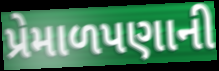
પ્રેમાળપણાની